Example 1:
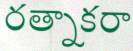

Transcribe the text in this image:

రత్నాకరా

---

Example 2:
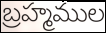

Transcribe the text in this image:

బ్రహ్మముల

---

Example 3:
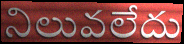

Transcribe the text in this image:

నిలువలేదు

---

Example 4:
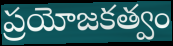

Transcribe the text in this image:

ప్రయోజకత్వం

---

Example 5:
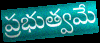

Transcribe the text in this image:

ప్రభుత్వమే